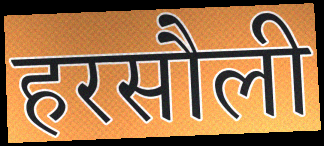
हरसौली